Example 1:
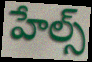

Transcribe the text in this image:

హేల్స్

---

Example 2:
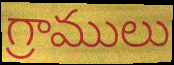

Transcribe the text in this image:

గ్రాములు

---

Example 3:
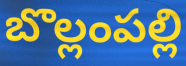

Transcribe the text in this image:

బొల్లంపల్లి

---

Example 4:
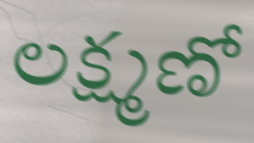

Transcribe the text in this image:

లక్ష్మణో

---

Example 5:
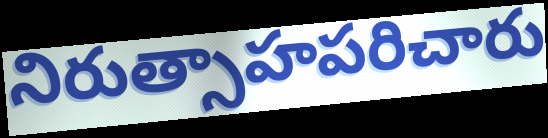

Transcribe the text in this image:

నిరుత్సాహపరిచారు